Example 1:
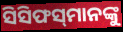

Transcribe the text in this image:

ସିସିଫସ୍‌ମାନଙ୍କୁ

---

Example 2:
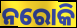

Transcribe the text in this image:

ନରୋକି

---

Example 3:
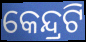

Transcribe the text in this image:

କେନ୍ଦ୍ରଟି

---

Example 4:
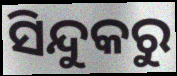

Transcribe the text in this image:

ସିନ୍ଦୁକରୁ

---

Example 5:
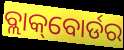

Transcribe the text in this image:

ବ୍ଲାକ୍‌ବୋର୍ଡର